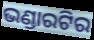
ଭଣ୍ଡାରଟିର